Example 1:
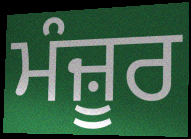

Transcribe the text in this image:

ਮੰਜ਼ੂਰ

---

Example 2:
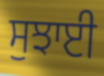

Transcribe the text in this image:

ਸੁਝਾਈ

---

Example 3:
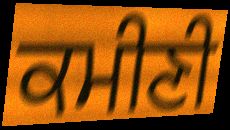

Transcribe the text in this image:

ਕਮੀਣੀ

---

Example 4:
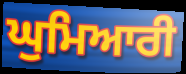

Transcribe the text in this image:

ਘੁਮਿਆਰੀ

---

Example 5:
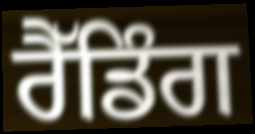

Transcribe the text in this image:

ਰੈੱਡਿੰਗ